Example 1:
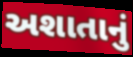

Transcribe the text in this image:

અશાતાનું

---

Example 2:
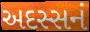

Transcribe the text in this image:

અદસ્સનં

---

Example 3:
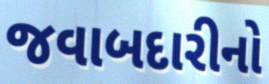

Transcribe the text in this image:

જવાબદારીનો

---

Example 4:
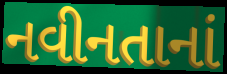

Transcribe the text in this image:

નવીનતાનાં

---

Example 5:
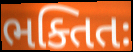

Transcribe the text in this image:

ભક્તિતઃ